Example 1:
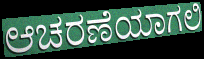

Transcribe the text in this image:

ಆಚರಣೆಯಾಗಲಿ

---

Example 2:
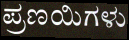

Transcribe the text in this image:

ಪ್ರಣಯಿಗಳು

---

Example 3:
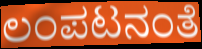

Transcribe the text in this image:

ಲಂಪಟನಂತೆ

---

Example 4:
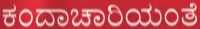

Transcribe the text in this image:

ಕಂದಾಚಾರಿಯಂತೆ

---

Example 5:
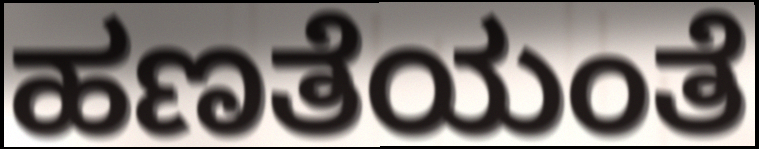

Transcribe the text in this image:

ಹಣತೆಯಂತೆ